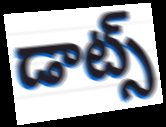
డాట్స్